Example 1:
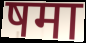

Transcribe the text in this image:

षमा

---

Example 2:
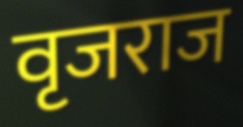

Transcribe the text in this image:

वृजराज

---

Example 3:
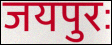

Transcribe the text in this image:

जयपुरः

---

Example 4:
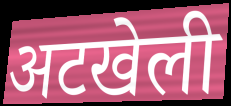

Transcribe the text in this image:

अटखेली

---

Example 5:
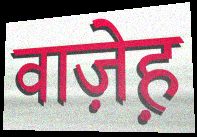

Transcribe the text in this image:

वाज़ेह़